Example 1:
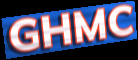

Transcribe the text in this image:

GHMC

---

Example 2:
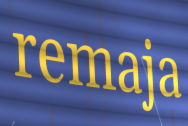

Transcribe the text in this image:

remaja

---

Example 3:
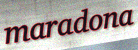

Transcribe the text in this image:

maradona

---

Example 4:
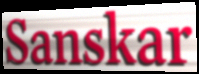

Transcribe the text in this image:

Sanskar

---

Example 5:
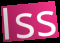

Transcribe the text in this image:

Iss